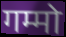
गम्मो